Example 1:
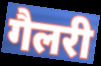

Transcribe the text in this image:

गैलरी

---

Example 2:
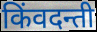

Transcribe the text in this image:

किंवदन्ती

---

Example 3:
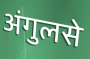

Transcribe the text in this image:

अंगुलसे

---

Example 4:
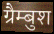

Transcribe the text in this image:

ग्रैम्बुश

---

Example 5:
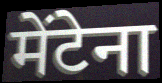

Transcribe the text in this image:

मेंटेना